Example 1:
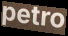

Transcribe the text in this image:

petro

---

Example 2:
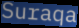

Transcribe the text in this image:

Suraqa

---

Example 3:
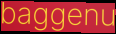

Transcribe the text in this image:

baggenu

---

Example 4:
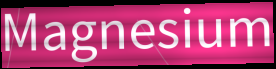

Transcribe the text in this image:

Magnesium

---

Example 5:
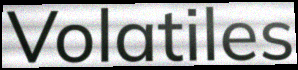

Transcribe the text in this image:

Volatiles